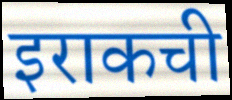
इराकची